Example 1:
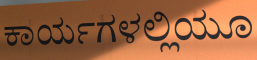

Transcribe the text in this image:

ಕಾರ್ಯಗಳಲ್ಲಿಯೂ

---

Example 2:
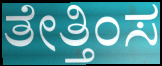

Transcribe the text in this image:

ತೇತ್ತಿಂಸ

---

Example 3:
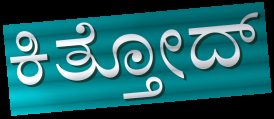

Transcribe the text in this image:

ಕಿತ್ತೋದ್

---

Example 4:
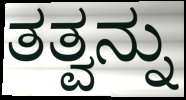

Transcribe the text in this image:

ತತ್ವನ್ನು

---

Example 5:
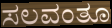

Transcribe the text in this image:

ಸಲವಂತೂ